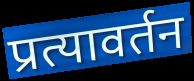
प्रत्‍यावर्तन